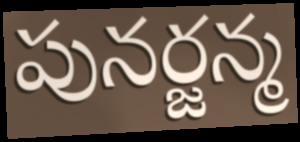
పునర్జన్మ